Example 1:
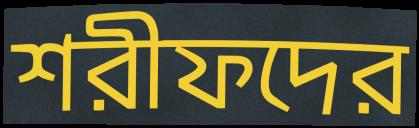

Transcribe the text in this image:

শরীফদের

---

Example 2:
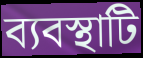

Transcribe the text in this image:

ব্যবস্থাটি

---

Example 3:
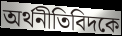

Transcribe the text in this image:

অর্থনীতিবিদকে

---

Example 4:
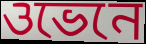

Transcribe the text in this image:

ওভেনে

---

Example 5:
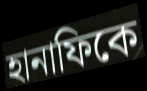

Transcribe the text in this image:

হানাফিকে